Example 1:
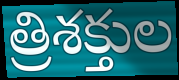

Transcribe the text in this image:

త్రిశక్తుల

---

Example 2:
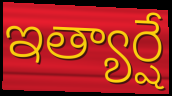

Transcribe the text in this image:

ఇత్యార్షే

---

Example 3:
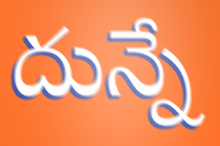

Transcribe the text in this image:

దున్నే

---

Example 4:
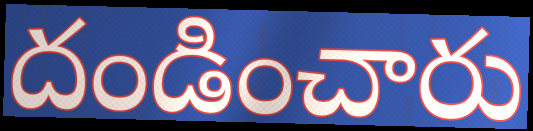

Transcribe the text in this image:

దండించారు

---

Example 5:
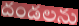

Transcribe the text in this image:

దండలను